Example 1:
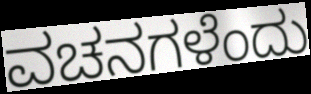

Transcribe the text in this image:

ವಚನಗಳೆಂದು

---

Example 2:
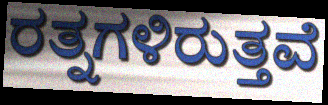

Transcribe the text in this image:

ರತ್ನಗಳಿರುತ್ತವೆ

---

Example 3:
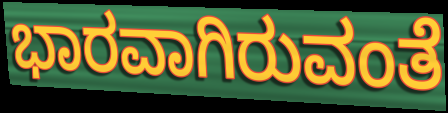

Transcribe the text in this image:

ಭಾರವಾಗಿರುವಂತೆ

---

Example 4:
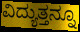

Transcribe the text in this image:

ವಿದ್ಯುತ್ತನ್ನೂ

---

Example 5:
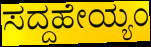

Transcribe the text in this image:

ಸದ್ದಹೇಯ್ಯಂ